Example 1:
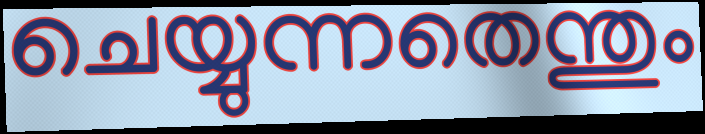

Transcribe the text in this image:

ചെയ്യുന്നതെന്തും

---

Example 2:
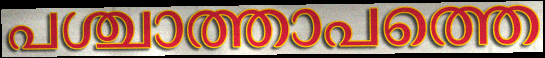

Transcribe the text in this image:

പശ്ചാത്താപത്തെ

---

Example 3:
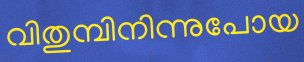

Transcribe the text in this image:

വിതുമ്പിനിന്നുപോയ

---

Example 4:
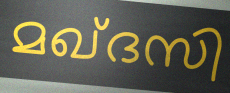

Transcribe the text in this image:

മഖ്ദസി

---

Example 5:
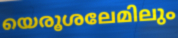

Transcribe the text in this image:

യെരൂശലേമിലും